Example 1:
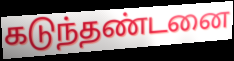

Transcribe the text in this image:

கடுந்தண்டனை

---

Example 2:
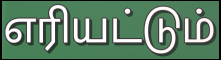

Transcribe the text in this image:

எரியட்டும்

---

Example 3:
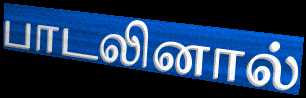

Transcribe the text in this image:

பாடலினால்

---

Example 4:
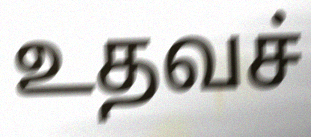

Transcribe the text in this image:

உதவச்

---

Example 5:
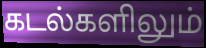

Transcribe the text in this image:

கடல்களிலும்